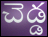
చెడ్డ